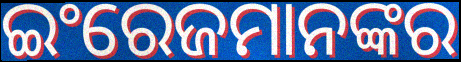
ଇଂରେଜମାନଙ୍କର